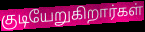
குடியேறுகிறார்கள்